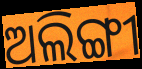
ଅଲିଙ୍ଗୀ